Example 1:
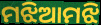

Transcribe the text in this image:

ମଝିଆମଝି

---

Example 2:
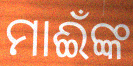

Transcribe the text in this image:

ମାଈଁଙ୍କ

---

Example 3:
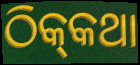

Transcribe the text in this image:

ଠିକ୍‌କଥା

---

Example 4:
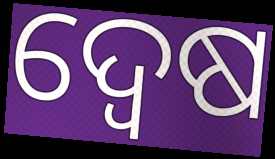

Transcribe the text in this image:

ଦ୍ବେଷ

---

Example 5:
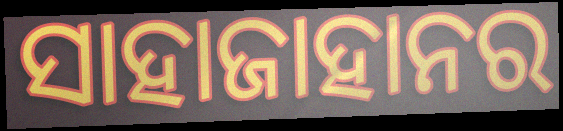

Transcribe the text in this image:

ସାହାଜାହାନର